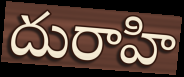
దురాహి